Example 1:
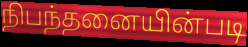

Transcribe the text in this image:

நிபந்தனையின்படி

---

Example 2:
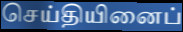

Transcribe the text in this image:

செய்தியினைப்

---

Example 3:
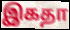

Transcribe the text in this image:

இகதா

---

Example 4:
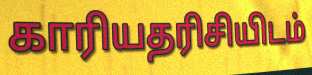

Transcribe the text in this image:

காரியதரிசியிடம்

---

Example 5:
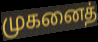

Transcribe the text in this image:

முகனைத்